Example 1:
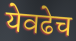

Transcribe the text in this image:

येवढेच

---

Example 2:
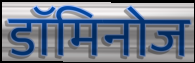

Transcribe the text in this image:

डॉमिनोज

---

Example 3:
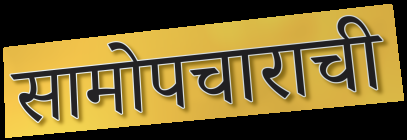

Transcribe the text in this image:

सामोपचाराची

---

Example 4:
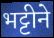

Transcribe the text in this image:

भट्टीने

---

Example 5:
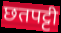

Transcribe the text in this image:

छतपट्टी